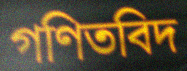
গণিতবিদ